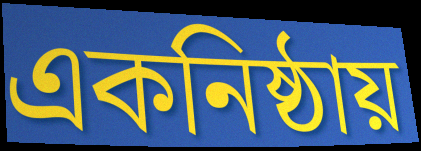
একনিষ্ঠায়